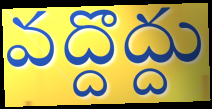
వద్దొద్దు